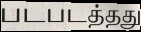
படபடத்தது